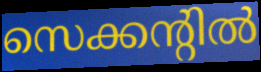
സെക്കന്റിൽ